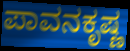
ಪಾವನಕೃಷ್ಣ